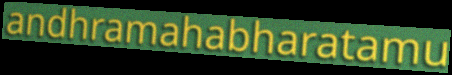
andhramahabharatamu